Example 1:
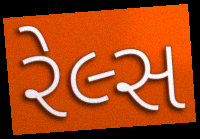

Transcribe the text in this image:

રેલ્સ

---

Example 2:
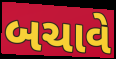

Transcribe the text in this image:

બચાવે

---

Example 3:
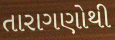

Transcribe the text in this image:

તારાગણોથી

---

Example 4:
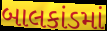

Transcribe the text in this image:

બાલકાંડમાં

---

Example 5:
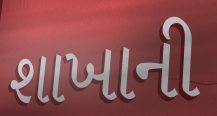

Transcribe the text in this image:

શાખાની